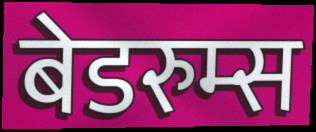
बेडरुम्स